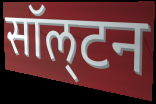
सॉल्टन